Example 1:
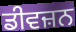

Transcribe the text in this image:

ਡੀਵਜ਼ਨ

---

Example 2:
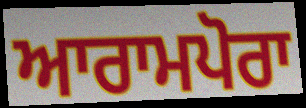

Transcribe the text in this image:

ਆਰਾਮਪੋਰਾ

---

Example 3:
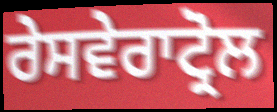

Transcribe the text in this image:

ਰੇਸਵੇਰਾਟ੍ਰੋਲ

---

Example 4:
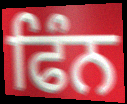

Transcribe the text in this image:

ਫਿੰਨ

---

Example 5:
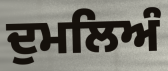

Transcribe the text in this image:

ਦੁਮਲਿਅੰ